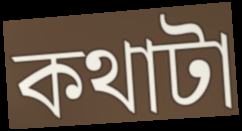
কথাটা